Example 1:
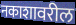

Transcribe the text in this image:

नकाशावरील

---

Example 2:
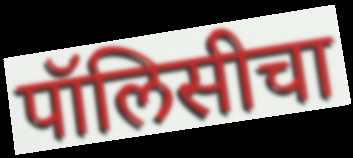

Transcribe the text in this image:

पॉलिसीचा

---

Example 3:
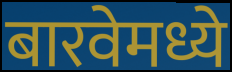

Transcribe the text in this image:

बारवेमध्ये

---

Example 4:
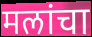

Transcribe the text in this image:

मलांचा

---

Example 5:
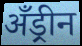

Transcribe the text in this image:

अँड्रीन